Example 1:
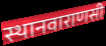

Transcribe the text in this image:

स्थानवाराणसी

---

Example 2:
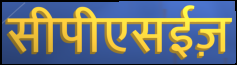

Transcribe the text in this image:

सीपीएसईज़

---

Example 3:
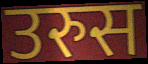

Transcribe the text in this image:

उरुस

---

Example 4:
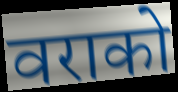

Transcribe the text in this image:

वराको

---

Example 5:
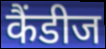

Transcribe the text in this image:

कैंडीज